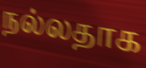
நல்லதாக